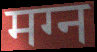
मग्‍न